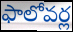
ఫాలోవర్ల